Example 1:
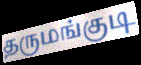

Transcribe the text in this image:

தருமங்குடி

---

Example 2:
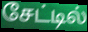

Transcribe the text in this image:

சேட்டில்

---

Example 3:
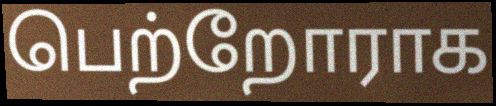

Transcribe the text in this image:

பெற்றோராக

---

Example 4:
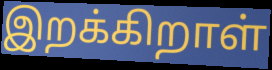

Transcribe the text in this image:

இறக்கிறாள்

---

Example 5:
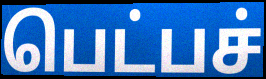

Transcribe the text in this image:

பெட்பச்